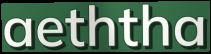
aeththa